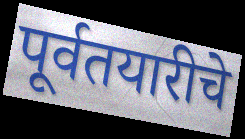
पूर्वतयारीचे